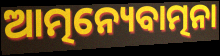
ଆତ୍ମନ୍ୟେବାତ୍ମନା